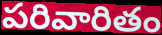
పరివారితం